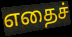
எதைச்